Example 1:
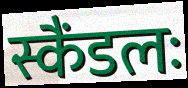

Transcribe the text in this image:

स्कैंडलः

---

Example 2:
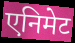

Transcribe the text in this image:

एनिमेट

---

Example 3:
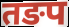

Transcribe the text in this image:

तङप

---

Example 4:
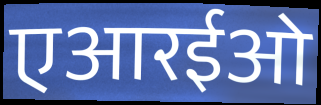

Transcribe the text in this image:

एआरईओ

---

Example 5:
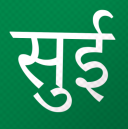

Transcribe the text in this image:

सुई